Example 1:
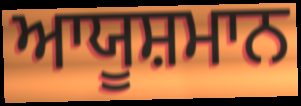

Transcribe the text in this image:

ਆਯੂਸ਼ਮਾਨ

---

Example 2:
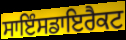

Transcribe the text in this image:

ਸਾਇੰਸਡਾਇਰੈਕਟ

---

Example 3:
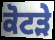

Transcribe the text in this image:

ਕੋਟੜੇ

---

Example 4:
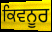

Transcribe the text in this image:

ਕਿਵਨੂਰ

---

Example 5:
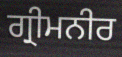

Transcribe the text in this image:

ਗ੍ਰੀਮਨੀਰ